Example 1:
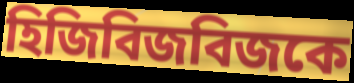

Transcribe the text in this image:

হিজিবিজবিজকে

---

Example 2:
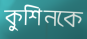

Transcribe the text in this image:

কুশিনকে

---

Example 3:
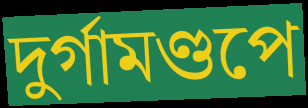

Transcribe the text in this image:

দুর্গামণ্ডপে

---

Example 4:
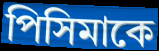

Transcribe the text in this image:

পিসিমাকে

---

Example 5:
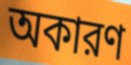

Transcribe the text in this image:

অকারণ